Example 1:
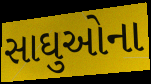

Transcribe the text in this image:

સાઘુઓના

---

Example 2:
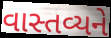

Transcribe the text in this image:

વાસ્તવ્યને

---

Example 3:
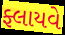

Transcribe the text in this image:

ફ્લાયવે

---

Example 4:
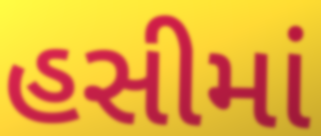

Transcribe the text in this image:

હસીમાં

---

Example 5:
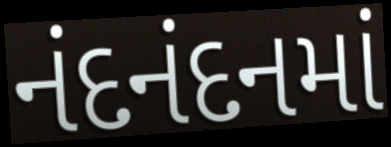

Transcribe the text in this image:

નંદનંદનમાં